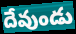
దేవుండు